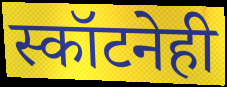
स्कॉटनेही